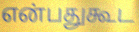
என்பதுகூட